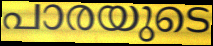
പാരയുടെ